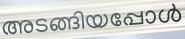
അടങ്ങിയപ്പോൾ